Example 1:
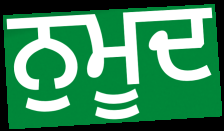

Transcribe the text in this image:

ਨੁਮੂਦ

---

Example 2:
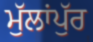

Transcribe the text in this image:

ਮੁੱਲਾਂਪੁੱਰ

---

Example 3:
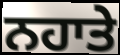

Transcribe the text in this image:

ਨਹਾਤੇ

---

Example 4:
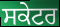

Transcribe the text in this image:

ਸਕੇਟਰ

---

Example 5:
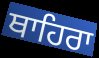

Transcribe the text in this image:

ਥਾਹਿਰਾ